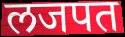
लजपत